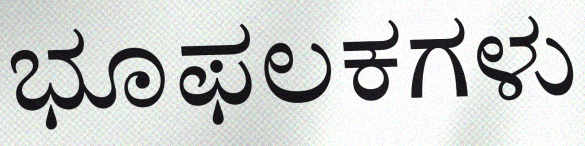
ಭೂಫಲಕಗಳು